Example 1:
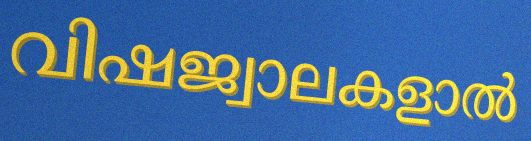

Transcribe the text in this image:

വിഷജ്വാലകളാൽ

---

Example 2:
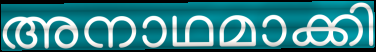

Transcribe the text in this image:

അനാഥമാക്കി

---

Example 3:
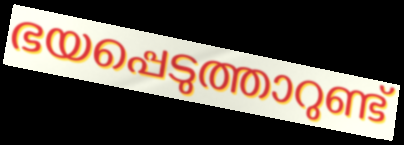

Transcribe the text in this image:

ഭയപ്പെടുത്താറുണ്ട്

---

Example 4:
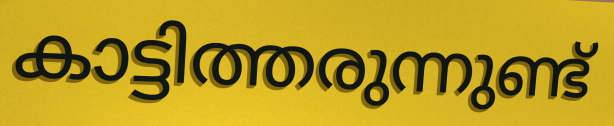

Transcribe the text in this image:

കാട്ടിത്തരുന്നുണ്ട്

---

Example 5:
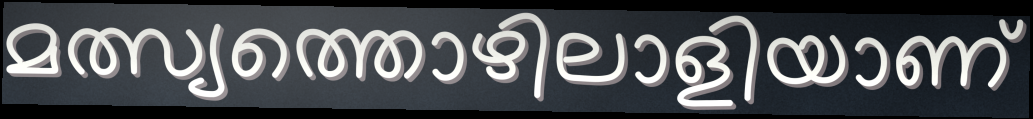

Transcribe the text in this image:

മത്സ്യത്തൊഴിലാളിയാണ്